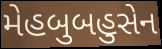
મેહબુબહુસેન